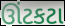
ઊંટકટા